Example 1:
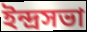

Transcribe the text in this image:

ইন্দ্রসভা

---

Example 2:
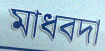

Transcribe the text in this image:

মাধবদা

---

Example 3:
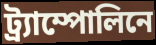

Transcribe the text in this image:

ট্র্যাম্পোলিনে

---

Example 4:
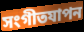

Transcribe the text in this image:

সংগীতযাপন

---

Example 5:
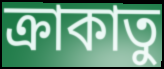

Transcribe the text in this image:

ক্রাকাতু